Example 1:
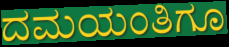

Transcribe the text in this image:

ದಮಯಂತಿಗೂ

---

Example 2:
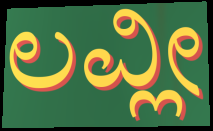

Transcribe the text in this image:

ಲವ್ಲೀ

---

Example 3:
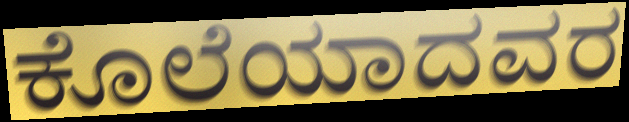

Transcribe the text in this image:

ಕೊಲೆಯಾದವರ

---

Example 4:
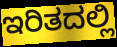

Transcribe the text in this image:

ಇರಿತದಲ್ಲಿ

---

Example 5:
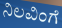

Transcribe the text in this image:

ನಿಲವಿಂಗೆ